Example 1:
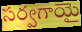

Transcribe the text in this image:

సర్వగాయై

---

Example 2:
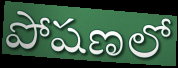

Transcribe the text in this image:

పోషణలో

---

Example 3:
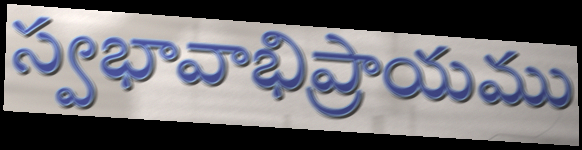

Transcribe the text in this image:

స్వభావాభిప్రాయము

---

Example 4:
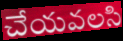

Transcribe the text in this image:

చేయవలసి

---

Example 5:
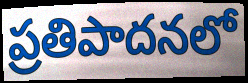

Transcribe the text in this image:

ప్రతిపాదనలో